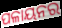
ପଳାୟନର